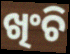
ଖିଂଚି